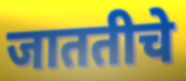
जाततीचे